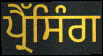
ਪ੍ਰੈੱਸਿੰਗ